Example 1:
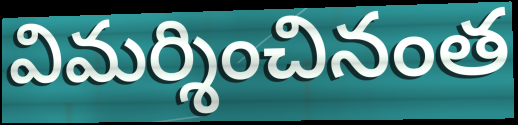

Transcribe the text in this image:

విమర్శించినంత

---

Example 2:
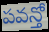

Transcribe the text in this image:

పవన్తో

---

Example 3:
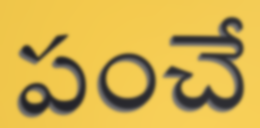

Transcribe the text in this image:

పంచే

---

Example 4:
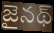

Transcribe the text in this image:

జైనథ్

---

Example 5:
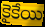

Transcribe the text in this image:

కైకేయి